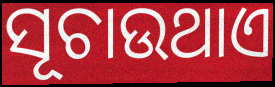
ସୂଚାଉଥାଏ